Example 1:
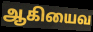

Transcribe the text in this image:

ஆகியைவ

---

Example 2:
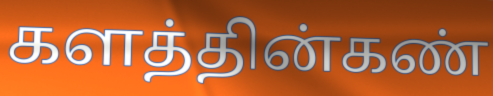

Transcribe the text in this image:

களத்தின்கண்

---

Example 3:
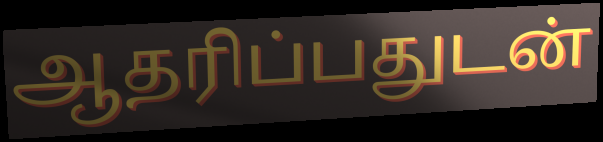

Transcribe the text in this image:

ஆதரிப்பதுடன்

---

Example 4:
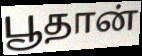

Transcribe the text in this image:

பூதான்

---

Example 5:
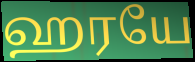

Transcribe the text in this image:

ஹரயே